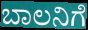
ಬಾಲನಿಗೆ